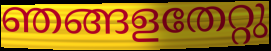
ഞങ്ങളതേറ്റു